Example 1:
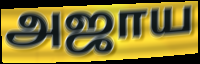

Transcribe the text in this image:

அஜாய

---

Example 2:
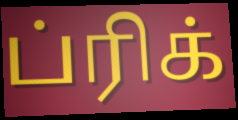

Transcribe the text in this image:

ப்ரிக்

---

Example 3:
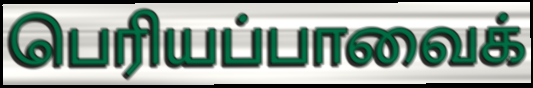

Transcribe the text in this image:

பெரியப்பாவைக்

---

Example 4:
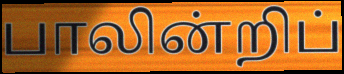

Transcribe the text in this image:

பாலின்றிப்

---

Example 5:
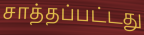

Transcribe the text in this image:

சாத்தப்பட்டது